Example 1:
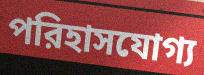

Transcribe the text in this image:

পরিহাসযোগ্য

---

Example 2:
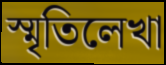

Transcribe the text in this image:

স্মৃতিলেখা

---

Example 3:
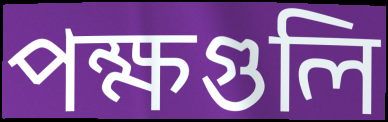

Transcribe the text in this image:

পক্ষগুলি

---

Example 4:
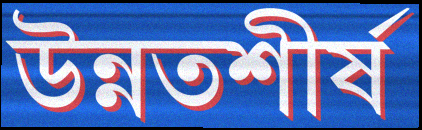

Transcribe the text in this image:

উন্নতশীর্ষ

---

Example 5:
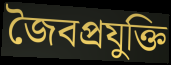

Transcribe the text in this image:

জৈবপ্রযুক্তি